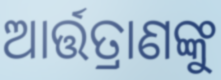
ଆର୍ତ୍ତତ୍ରାଣଙ୍କୁ